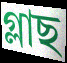
গ্লাছ